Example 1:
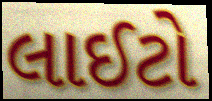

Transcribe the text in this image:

લાઈટો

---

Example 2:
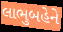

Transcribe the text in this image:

લાભુબહેને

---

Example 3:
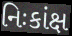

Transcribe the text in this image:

નિઃકાંક્ષ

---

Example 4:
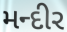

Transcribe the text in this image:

મન્દીર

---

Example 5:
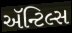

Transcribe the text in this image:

ઍન્ટિલ્સ